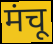
मंचू